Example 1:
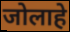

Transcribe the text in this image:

जोलाहे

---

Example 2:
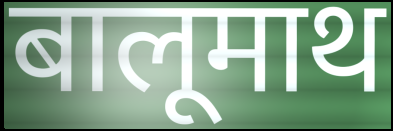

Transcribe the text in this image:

बालूमाथ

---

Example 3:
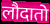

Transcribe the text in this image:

लौदातो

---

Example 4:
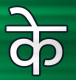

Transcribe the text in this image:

के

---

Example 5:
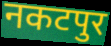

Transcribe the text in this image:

नकटपुर